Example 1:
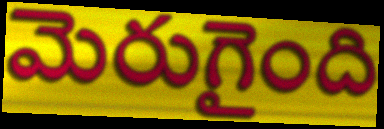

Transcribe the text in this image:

మెరుగైంది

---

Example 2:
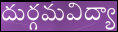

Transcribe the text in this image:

దుర్గమవిద్యా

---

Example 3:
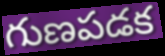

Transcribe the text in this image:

గుణపడక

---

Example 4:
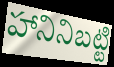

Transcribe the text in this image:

హానినిబట్టి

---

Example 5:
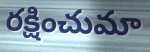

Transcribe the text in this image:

రక్షించుమా